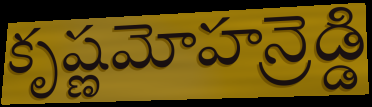
కృష్ణమోహన్రెడ్డి